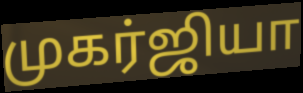
முகர்ஜியா